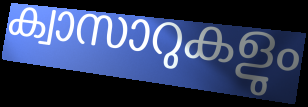
ക്വാസാറുകളും